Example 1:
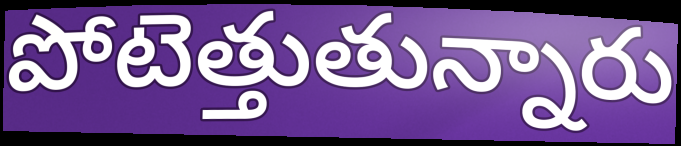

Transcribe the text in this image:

పోటెత్తుతున్నారు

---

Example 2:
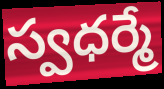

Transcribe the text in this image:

స్వధర్మే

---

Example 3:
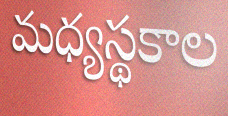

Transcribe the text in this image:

మధ్యస్థకాల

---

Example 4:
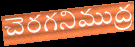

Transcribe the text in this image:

చెరగనిముద్ర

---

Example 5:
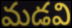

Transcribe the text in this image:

మడవి